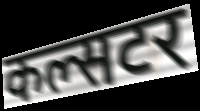
कल्सटर